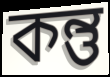
কন্তু